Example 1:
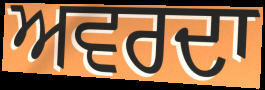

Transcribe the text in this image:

ਅਵਰਦਾ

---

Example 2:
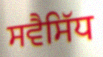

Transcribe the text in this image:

ਸਵੈਸਿੱਧ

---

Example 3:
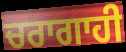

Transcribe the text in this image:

ਚਰਾਗਾਹੀ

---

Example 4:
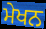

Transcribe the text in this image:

ਮੇਖਨ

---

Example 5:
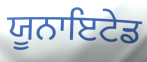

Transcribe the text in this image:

ਯੂਨਾਇਟੇਡ